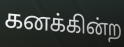
கனக்கின்ற